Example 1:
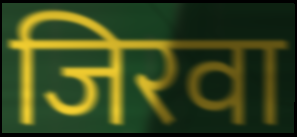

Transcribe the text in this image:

जिरवा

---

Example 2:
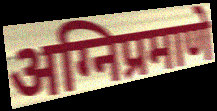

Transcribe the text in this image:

अग्निप्रमाणे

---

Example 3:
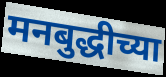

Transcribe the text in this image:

मनबुद्धीच्या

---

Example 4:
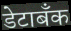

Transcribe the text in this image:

डेटाबँक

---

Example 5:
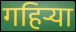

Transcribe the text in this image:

गहिऱ्या